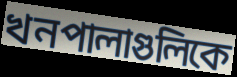
খনপালাগুলিকে